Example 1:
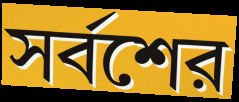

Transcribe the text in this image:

সর্বশের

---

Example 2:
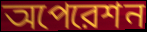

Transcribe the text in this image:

অপেরেশন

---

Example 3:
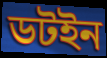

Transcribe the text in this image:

ডটইন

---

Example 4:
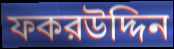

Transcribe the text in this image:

ফকরউদ্দিন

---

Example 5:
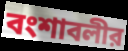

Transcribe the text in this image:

বংশাবলীর